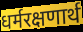
धर्मरक्षणार्थ